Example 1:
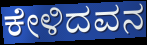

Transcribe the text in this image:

ಕೇಳಿದವನ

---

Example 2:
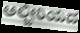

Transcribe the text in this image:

ಅಲ್ಜೀರಿಯದ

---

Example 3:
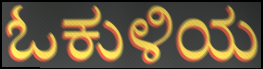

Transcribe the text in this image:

ಓಕುಳಿಯ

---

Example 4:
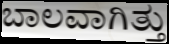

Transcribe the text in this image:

ಬಾಲವಾಗಿತ್ತು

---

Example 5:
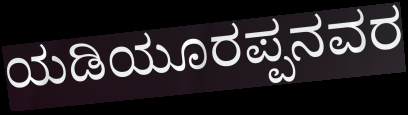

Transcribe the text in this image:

ಯಡಿಯೂರಪ್ಪನವರ